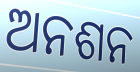
ଅନଶନ